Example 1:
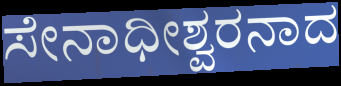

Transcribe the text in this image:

ಸೇನಾಧೀಶ್ವರನಾದ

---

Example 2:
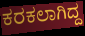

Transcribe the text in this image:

ಕರಕಲಾಗಿದ್ದ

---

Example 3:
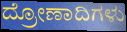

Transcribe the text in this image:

ದ್ರೋಣಾದಿಗಳು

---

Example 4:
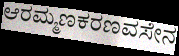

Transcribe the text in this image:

ಆರಮ್ಮಣಕರಣವಸೇನ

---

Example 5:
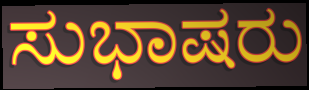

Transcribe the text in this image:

ಸುಭಾಷರು